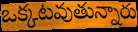
ఒక్కటవుతున్నారు